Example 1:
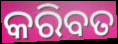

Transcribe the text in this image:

କରିବତ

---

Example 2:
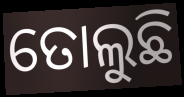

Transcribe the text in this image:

ତୋଲୁଛି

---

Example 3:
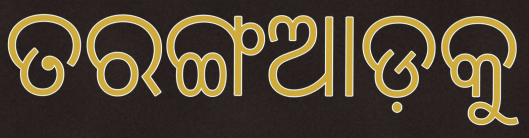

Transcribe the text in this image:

ତରଙ୍ଗଆଡ଼କୁ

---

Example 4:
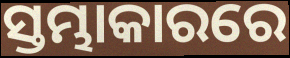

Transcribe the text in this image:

ସ୍ତମ୍ଭାକାରରେ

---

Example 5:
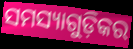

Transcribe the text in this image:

ସମସ୍ୟାଗୁଡ଼ିକର